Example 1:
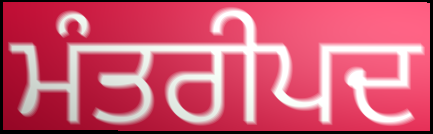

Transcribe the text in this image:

ਮੰਤਰੀਪਦ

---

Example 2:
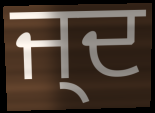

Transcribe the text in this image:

ਜ੍ਦ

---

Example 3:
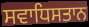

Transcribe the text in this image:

ਸਵਾਧਿਸਤਾਨ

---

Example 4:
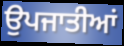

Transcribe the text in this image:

ਉਪਜਾਤੀਆਂ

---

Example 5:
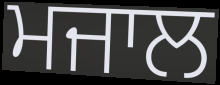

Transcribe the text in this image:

ਮਜਾਲ